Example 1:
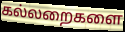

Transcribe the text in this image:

கல்லறைகளை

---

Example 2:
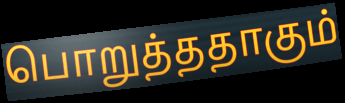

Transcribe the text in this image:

பொறுத்ததாகும்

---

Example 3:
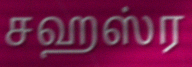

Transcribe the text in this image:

சஹஸ்ர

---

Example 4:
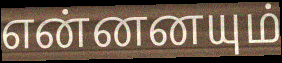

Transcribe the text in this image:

என்னனயும்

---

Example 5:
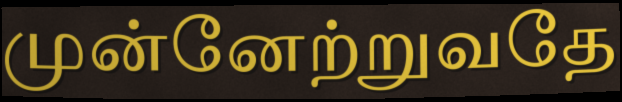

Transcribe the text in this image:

முன்னேற்றுவதே